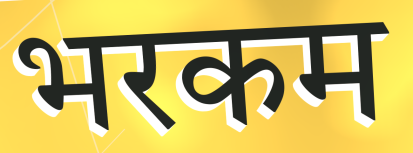
भरकम